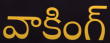
వాకింగ్